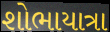
શોભાયાત્રા